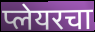
प्लेयरचा